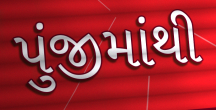
પુંજીમાંથી